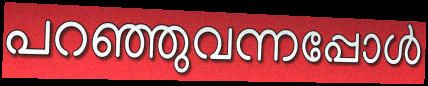
പറഞ്ഞുവന്നപ്പോൾ